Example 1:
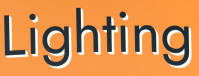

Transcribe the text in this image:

Lighting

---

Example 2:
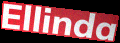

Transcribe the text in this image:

Ellinda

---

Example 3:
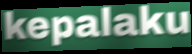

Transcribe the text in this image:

kepalaku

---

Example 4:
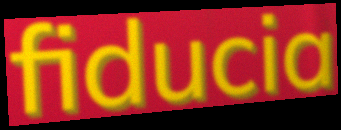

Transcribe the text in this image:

fiducia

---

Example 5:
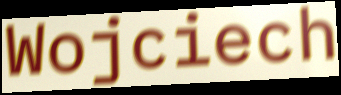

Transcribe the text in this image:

Wojciech